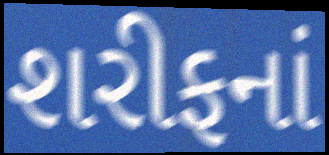
શરીફનાં